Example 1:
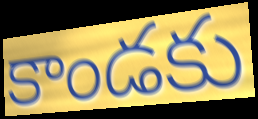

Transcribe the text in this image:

కాండకు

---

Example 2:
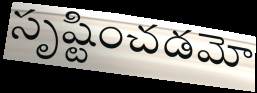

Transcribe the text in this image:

సృష్టించడమో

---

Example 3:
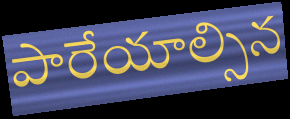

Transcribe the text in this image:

పారేయాల్సిన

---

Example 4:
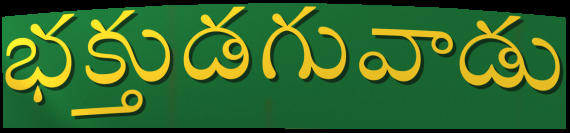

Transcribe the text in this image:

భక్తుడగువాడు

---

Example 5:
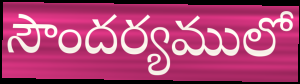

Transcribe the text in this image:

సౌందర్యములో